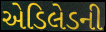
એડિલેડની